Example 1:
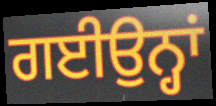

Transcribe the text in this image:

ਗਈਉਨ੍ਹਾਂ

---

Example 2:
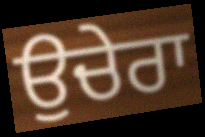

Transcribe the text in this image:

ਉਚੇਰਾ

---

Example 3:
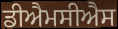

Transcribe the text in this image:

ਡੀਐਮਸੀਐਸ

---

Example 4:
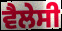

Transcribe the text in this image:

ਵੈਲੇਸੀ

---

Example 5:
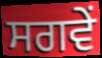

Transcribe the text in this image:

ਸਗਵੇਂ